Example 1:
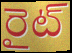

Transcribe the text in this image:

రైట్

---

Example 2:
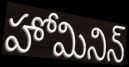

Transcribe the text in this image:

హోమినిన్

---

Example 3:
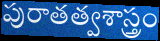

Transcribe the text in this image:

పురాతత్వశాస్త్రం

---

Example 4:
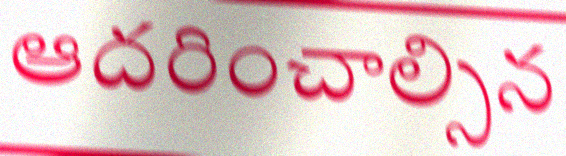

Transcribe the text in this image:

ఆదరించాల్సిన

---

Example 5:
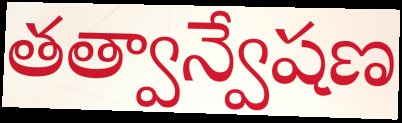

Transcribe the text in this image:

తత్వాన్వేషణ